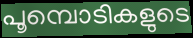
പൂമ്പൊടികളുടെ